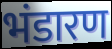
भंडारण